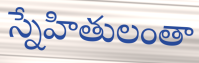
స్నేహితులంతా